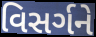
વિસર્ગને